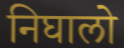
निघालो